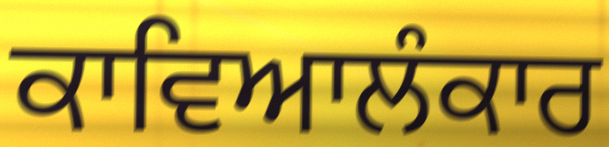
ਕਾਵਿਆਲੰਕਾਰ